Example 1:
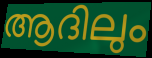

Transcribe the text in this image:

ആദിലും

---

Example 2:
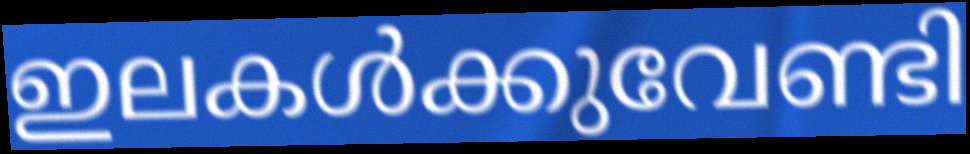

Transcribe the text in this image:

ഇലകൾക്കുവേണ്ടി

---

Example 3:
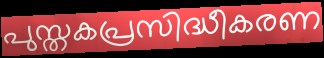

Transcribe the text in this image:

പുസ്തകപ്രസിദ്ധീകരണ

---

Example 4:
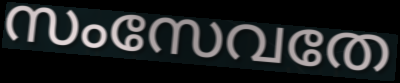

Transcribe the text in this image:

സംസേവതേ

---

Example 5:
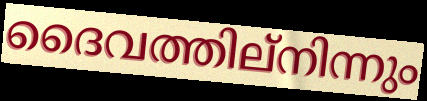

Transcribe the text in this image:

ദൈവത്തില്നിന്നും